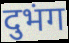
दुभंग